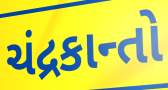
ચંદ્રકાન્તો